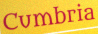
Cumbria